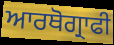
ਆਰਥੋਗ੍ਰਾਫੀ